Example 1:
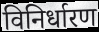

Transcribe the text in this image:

विनिर्धारण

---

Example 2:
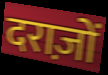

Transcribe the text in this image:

दराज़ों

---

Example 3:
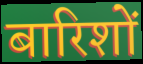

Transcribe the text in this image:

बारिशों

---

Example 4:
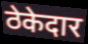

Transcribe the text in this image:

ठेकेदार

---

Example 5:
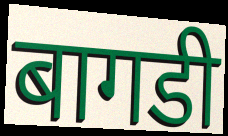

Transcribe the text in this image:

बागडी